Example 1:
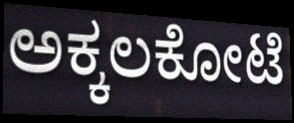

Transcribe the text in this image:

ಅಕ್ಕಲಕೋಟೆ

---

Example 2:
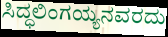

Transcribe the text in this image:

ಸಿದ್ಧಲಿಂಗಯ್ಯನವರದು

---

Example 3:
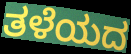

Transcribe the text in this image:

ತಳೆಯದ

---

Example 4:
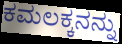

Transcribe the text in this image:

ಕಮಲಕ್ಕನನ್ನು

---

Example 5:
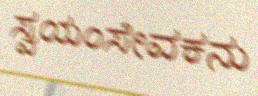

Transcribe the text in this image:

ಸ್ವಯಂಸೇವಕನು